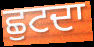
ਛੁਟਦਾ